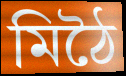
মিঠৈ